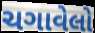
ચગાવેલો